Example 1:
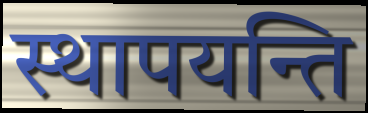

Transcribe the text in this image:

स्थापयन्ति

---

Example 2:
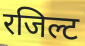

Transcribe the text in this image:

रजिल्ट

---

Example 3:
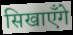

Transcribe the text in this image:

सिखाएँगे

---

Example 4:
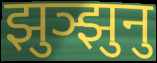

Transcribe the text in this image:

झुञ्झुनु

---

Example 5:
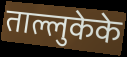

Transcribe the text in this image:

ताल्लुकेके